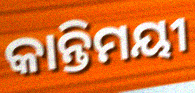
କାନ୍ତିମୟୀ